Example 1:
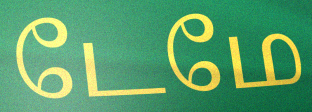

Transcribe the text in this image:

டேமே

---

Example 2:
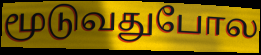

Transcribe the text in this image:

மூடுவதுபோல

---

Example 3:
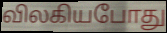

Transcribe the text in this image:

விலகியபோது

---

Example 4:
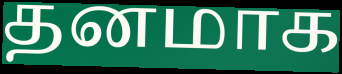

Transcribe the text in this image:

தனமாக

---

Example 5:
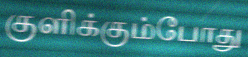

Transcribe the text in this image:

குளிக்கும்போது